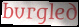
burgled